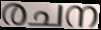
രചന